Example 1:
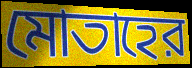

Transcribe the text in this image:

মোতাহের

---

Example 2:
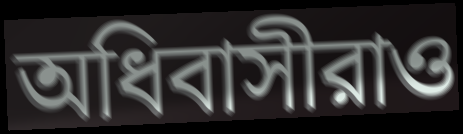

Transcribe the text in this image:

অধিবাসীরাও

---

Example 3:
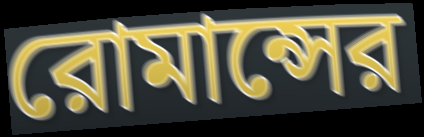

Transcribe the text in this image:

রোমান্সের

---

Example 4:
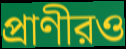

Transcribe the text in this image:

প্রাণীরও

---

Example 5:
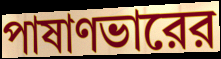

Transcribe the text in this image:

পাষাণভারের